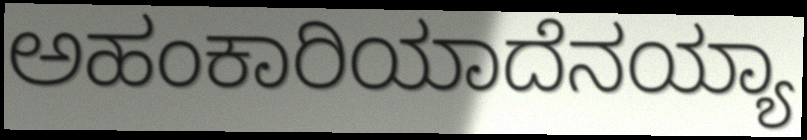
ಅಹಂಕಾರಿಯಾದೆನಯ್ಯಾ